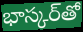
భాస్కర్‌తో